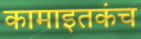
कामाइतकंच